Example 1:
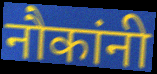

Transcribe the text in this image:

नौकांनी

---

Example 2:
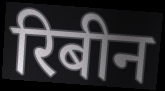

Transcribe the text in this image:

रिबीन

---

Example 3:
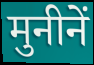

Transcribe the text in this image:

मुनीनें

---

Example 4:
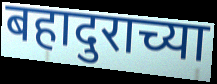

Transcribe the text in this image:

बहादुराच्या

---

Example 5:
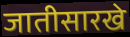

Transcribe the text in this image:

जातीसारखे